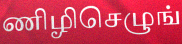
ணிழிசெழுங்